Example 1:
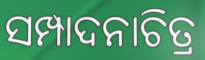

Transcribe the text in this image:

ସମ୍ପାଦନାଚିତ୍ର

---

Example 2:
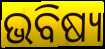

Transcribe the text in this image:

ଭବିଷ୍ଯ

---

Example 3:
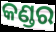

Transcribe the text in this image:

କଣ୍ଡର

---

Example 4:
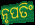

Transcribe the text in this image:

ନୃପତିଂ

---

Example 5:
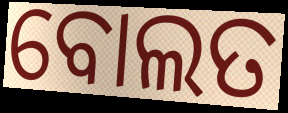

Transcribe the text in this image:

ବୋଲତ